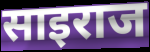
साइराज